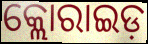
କ୍ଲୋରାଇଡ଼